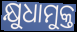
କ୍ଷୁଧାମୁକ୍ତ